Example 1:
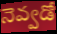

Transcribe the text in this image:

నెవ్వడో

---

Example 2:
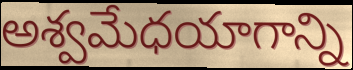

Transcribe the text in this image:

అశ్వమేధయాగాన్ని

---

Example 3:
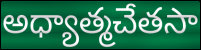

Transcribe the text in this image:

అధ్యాత్మచేతసా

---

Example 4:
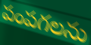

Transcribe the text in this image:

పంపగలను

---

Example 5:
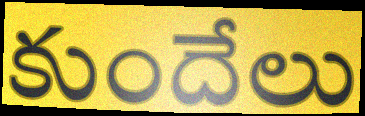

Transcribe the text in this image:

కుందేలు